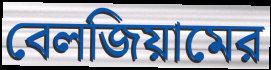
বেলজিয়ামের